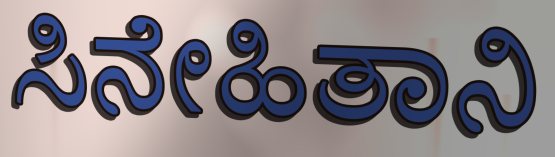
ಸಿನೇಹಿತಾನಿ